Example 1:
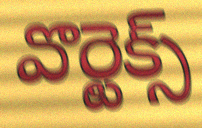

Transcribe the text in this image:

వొర్టెక్స్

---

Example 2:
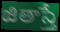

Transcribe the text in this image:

జితాస్తే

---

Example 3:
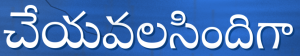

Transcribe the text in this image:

చేయవలసిందిగా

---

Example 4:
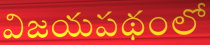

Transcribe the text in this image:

విజయపథంలో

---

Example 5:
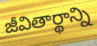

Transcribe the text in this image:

జీవితార్థాన్ని